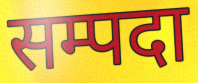
सम्पदा